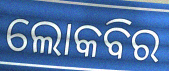
ଲୋକବିର